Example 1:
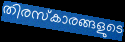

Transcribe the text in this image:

തിരസ്കാരങ്ങളുടെ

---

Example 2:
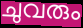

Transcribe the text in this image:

ചുവരും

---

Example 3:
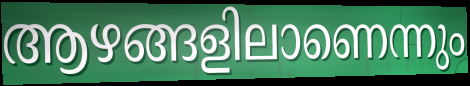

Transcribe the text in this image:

ആഴങ്ങളിലാണെന്നും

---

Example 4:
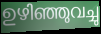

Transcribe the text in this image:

ഉഴിഞ്ഞുവച്ചു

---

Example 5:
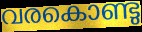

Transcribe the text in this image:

വരകൊണ്ടു